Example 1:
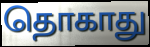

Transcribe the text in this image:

தொகாது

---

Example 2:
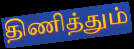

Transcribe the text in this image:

திணித்தும்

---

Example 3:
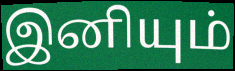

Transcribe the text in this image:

இனியும்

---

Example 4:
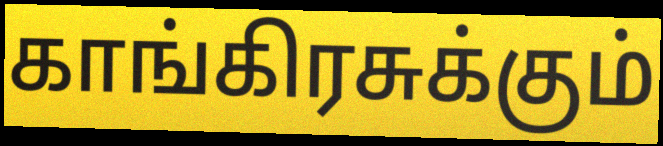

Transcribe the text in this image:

காங்கிரசுக்கும்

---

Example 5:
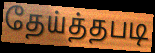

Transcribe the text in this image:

தேய்த்தபடி